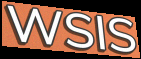
WSIS